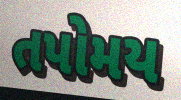
તપોમય